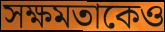
সক্ষমতাকেও